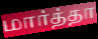
மார்த்தா